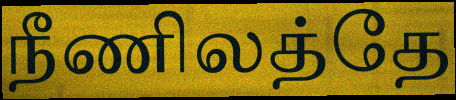
நீணிலத்தே